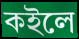
কইলে